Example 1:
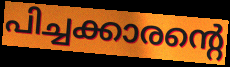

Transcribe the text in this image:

പിച്ചക്കാരന്റെ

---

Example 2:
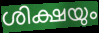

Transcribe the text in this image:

ശിക്ഷയും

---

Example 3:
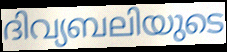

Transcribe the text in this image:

ദിവ്യബലിയുടെ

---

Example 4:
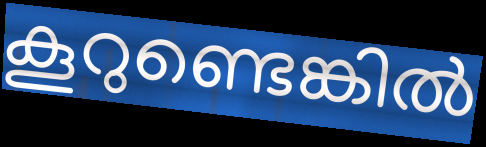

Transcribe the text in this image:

കൂറുണ്ടെങ്കിൽ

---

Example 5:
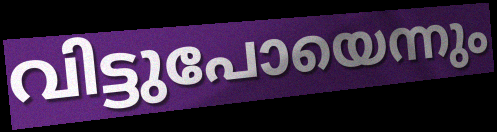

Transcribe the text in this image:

വിട്ടുപോയെന്നും